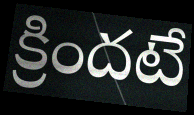
క్రిందటే